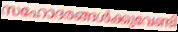
സഹോദരങ്ങൾക്കുവേണ്ടി